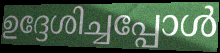
ഉദ്ദേശിച്ചപ്പോൾ